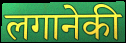
लगानेकी